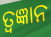
ତ୍ୱଜ୍ଞାନ